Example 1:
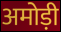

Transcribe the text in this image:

अमोड़ी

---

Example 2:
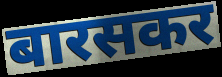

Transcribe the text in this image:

बारसकर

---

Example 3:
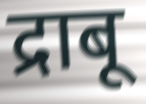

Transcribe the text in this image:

द्राबू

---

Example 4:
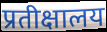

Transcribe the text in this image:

प्रतीक्षालय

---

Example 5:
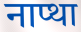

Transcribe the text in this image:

नाप्था